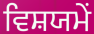
ਵਿਸ਼ਯਮੇਂ